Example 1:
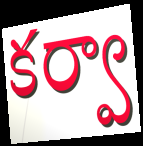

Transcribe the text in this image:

కర్వా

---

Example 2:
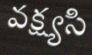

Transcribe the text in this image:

వక్ష్యసి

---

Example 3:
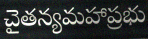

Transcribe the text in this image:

చైతన్యమహాప్రభు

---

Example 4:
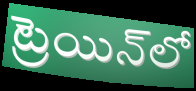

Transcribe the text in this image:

ట్రెయిన్‌లో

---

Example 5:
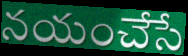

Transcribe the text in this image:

నయంచేసే